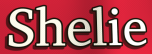
Shelie